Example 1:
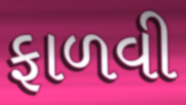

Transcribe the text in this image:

ફાળવી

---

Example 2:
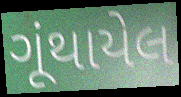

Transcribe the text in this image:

ગૂંથાયેલ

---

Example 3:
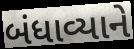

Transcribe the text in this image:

બંધાવ્યાને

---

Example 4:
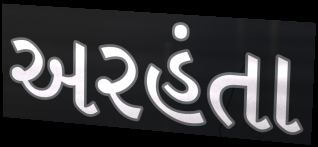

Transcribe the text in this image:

અરહંતા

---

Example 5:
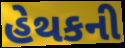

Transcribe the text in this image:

હેથકની